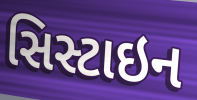
સિસ્ટાઇન